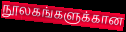
நூலகங்களுக்கான